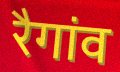
रैगांव